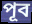
পূব